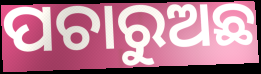
ପଚାରୁଅଛ